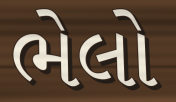
ભેલો